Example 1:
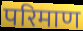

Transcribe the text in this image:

परिमाण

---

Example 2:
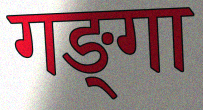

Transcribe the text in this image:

गङ्‍गा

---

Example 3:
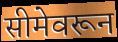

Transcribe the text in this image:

सीमेवरून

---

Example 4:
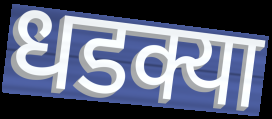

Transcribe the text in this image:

धडक्या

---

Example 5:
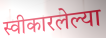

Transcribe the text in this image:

स्वीकारलेल्या